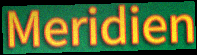
Meridien